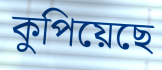
কুপিয়েছে